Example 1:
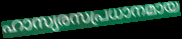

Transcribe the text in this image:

ഹാസ്യരസപ്രധാനമായ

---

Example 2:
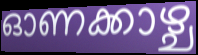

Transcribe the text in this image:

ഓണക്കാഴ്ച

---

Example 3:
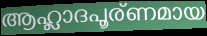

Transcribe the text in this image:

ആഹ്ലാദപൂര്ണമായ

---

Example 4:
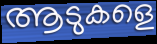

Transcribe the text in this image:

ആടുകളെ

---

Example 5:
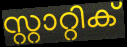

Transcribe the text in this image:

സ്റ്റാറ്റിക്